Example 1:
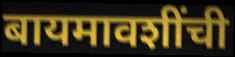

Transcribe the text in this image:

बायमावशींची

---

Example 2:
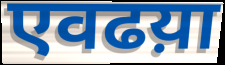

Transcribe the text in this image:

एवढय़ा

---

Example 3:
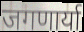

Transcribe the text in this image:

जगणार्या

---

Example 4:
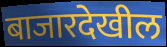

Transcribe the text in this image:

बाजारदेखील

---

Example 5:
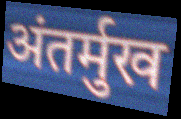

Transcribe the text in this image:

अंतर्मुख